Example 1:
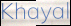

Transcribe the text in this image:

Khayal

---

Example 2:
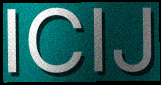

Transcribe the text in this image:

ICIJ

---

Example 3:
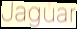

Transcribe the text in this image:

Jaguar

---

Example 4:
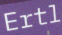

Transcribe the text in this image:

Ertl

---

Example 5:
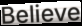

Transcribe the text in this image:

Believe